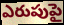
ఎరుపుపై